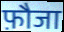
फ़ौजा